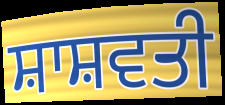
ਸ਼ਾਸ਼ਵਤੀ